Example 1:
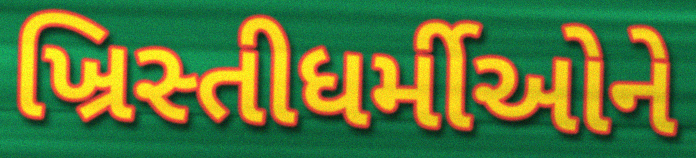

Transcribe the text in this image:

ખ્રિસ્તીધર્મીઓને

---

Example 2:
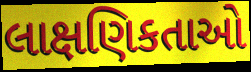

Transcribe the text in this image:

લાક્ષણિકતાઓ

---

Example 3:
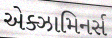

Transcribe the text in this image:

એક્ઝામિનર્સ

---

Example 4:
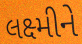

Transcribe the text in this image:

લક્ષ્મીને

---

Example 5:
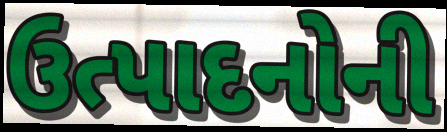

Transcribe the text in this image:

ઉત્પાદનોની